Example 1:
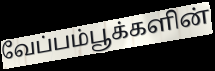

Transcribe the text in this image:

வேப்பம்பூக்களின்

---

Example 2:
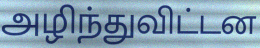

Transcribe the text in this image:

அழிந்துவிட்டன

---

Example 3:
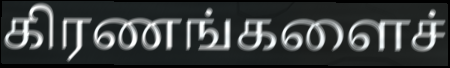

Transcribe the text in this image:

கிரணங்களைச்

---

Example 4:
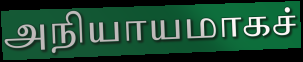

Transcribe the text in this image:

அநியாயமாகச்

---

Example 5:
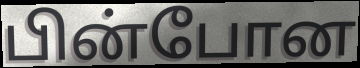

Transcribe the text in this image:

பின்போன